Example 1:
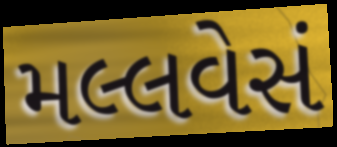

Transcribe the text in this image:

મલ્લવેસં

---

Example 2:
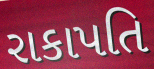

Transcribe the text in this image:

રાકાપતિ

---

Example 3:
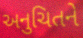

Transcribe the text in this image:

અનુચિતને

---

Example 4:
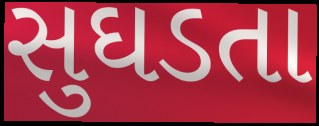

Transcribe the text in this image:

સુઘડતા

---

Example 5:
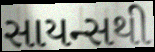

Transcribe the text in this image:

સાયન્સથી